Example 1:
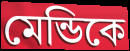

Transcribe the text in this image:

মেন্ডিকে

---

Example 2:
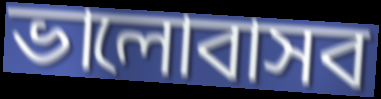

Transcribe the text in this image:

ভালোবাসব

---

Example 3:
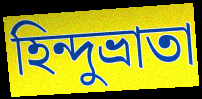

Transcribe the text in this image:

হিন্দুভ্রাতা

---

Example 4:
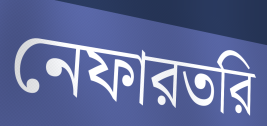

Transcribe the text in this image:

নেফারতরি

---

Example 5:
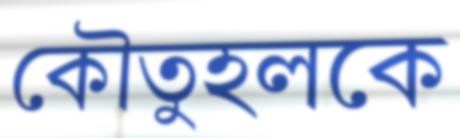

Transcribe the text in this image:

কৌতুহলকে